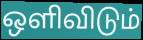
ஒளிவிடும்